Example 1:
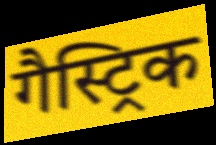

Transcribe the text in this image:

गैस्ट्रिक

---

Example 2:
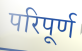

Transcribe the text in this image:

परिपूर्ण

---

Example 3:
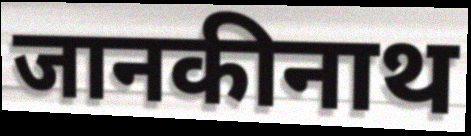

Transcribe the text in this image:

जानकीनाथ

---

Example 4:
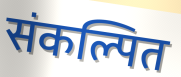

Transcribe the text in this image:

संकल्पित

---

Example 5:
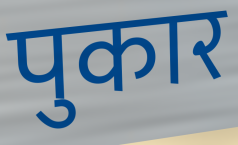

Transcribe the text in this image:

पुकार